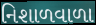
નિશાળવાળા